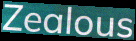
Zealous